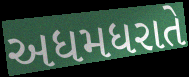
અધમધરાતે